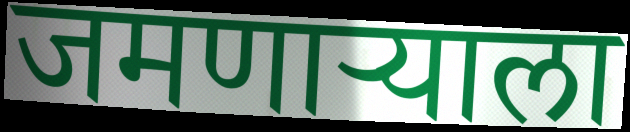
जमणाऱ्याला